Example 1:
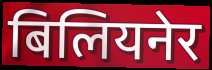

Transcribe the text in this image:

बिलियनेर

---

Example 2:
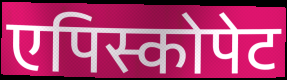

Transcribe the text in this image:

एपिस्कोपेट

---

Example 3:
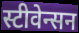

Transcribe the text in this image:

स्टीवेन्सन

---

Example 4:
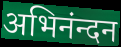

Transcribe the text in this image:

अभिनंन्दन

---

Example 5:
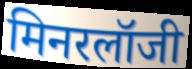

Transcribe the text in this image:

मिनरलॉजी